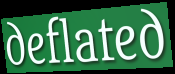
deflated